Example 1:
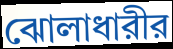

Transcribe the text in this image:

ঝোলাধারীর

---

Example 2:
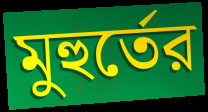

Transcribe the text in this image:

মুহুর্তের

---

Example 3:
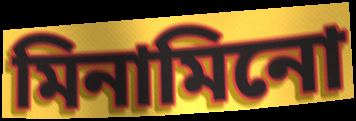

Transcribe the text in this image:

মিনামিনো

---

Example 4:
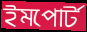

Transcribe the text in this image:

ইমপোর্ট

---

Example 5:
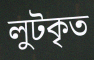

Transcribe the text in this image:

লুটকৃত